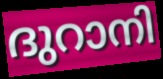
ദുറാനി